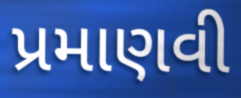
પ્રમાણવી